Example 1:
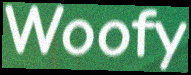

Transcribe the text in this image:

Woofy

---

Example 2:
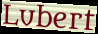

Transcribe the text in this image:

Lubert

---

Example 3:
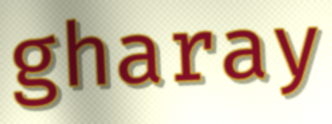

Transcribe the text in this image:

gharay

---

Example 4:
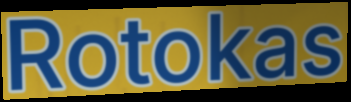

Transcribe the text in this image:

Rotokas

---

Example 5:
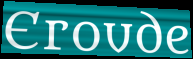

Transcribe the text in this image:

Eroude